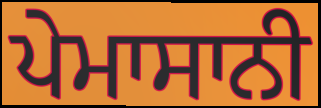
ਪੇਮਾਸਾਨੀ